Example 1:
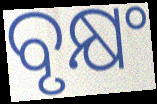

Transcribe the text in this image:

ବୃକ୍ଷଂ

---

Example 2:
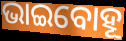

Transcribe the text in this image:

ଭାଇବୋହୂ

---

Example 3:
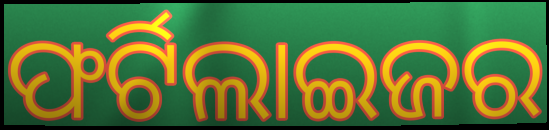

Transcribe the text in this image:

ଫର୍ଟିଲାଇଜର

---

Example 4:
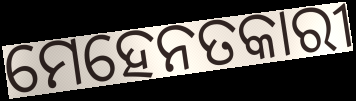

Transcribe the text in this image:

ମେହେନତକାରୀ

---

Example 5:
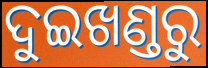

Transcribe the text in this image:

ଦୁଇଖଣ୍ଡରୁ